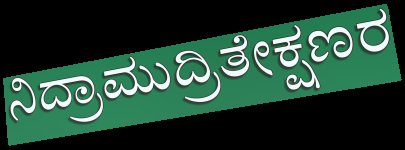
ನಿದ್ರಾಮುದ್ರಿತೇಕ್ಷಣರ